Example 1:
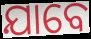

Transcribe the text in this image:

ଯାବେ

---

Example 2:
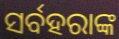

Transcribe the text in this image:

ସର୍ବହରାଙ୍କ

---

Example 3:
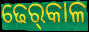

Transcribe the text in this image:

ଢେର୍‌କାଳ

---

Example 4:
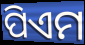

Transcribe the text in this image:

ପିଏମ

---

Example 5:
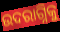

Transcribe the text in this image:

ଉଦରାଗ୍ନିକୁ